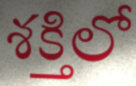
శక్తిలో